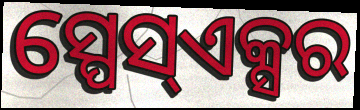
ସ୍ପେସ୍ଏକ୍ସର